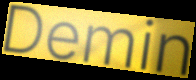
Demin